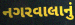
નગરવાલાનું